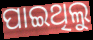
ପାଇଥିଲୁ